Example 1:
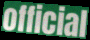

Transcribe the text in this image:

official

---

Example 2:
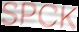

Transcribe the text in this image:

SPCK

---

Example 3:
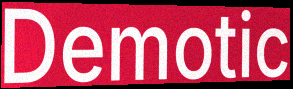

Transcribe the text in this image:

Demotic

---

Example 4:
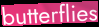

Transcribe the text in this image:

butterflies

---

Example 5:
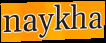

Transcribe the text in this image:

naykha